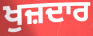
ਖੁਜ਼ਦਾਰ